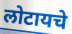
लोटायचे